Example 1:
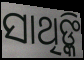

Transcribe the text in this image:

ସାଥିଙ୍କି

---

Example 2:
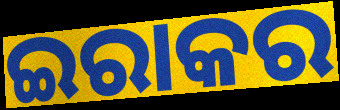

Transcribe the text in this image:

ଇରାକର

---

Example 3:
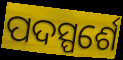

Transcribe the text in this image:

ପଦସ୍ପର୍ଶେ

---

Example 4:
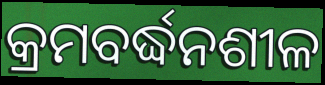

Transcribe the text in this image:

କ୍ରମବର୍ଦ୍ଧନଶୀଳ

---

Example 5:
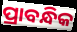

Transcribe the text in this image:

ପ୍ରାବନ୍ଧିକ